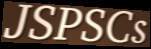
JSPSCs